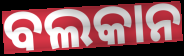
ବଲକାନ